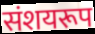
संशयरूप